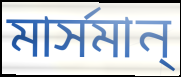
মার্সমান্